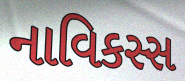
નાવિકસ્સ